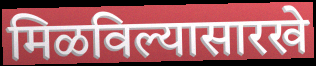
मिळविल्यासारखे